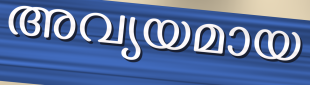
അവ്യയമായ